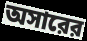
অসারের